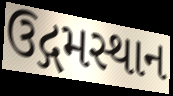
ઉદ્ગમસ્થાન